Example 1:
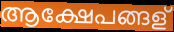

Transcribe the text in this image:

ആക്ഷേപങ്ങള്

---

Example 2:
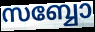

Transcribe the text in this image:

സബ്ബോ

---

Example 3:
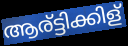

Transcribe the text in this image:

ആര്ട്ടിക്കിള്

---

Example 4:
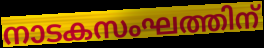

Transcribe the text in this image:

നാടകസംഘത്തിന്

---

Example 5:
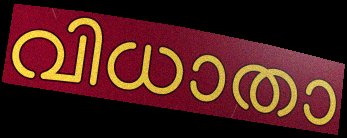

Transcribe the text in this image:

വിധാതാ